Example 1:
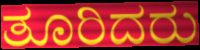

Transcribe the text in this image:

ತೂರಿದರು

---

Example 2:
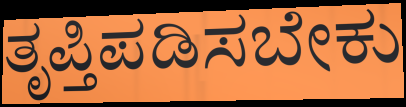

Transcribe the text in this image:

ತೃಪ್ತಿಪಡಿಸಬೇಕು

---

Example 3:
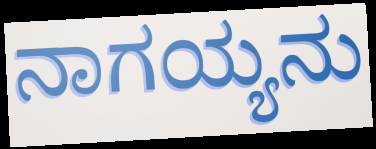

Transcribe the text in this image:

ನಾಗಯ್ಯನು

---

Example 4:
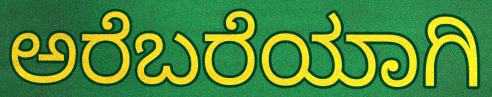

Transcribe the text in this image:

ಅರೆಬರೆಯಾಗಿ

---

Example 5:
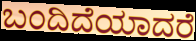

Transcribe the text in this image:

ಬಂದಿದೆಯಾದರೆ